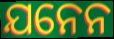
ଯନେନ